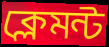
ক্লেমন্ট